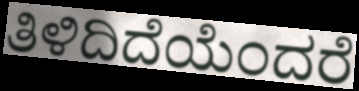
ತಿಳಿದಿದೆಯೆಂದರೆ